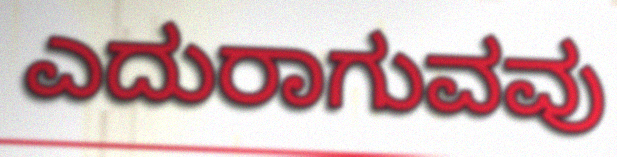
ಎದುರಾಗುವವು